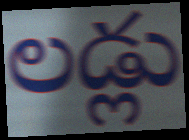
లడ్లు